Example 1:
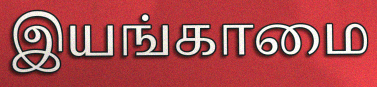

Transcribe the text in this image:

இயங்காமை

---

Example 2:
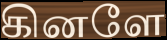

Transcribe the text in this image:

கினளே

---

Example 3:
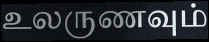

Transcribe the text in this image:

உலருணவும்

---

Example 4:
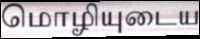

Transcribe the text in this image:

மொழியுடைய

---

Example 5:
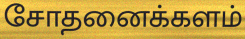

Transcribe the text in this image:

சோதனைக்களம்